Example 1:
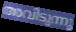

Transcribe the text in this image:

അവിടുന്നു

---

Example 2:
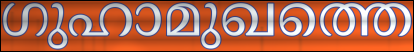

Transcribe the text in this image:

ഗുഹാമുഖത്തെ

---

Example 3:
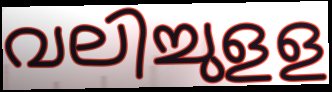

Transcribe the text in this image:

വലിച്ചുളള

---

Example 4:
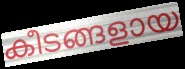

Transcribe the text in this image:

കീടങ്ങളായ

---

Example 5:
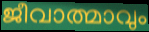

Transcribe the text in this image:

ജീവാത്മാവും